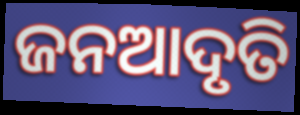
ଜନଆଦୃତି